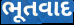
ભૂતવાદ